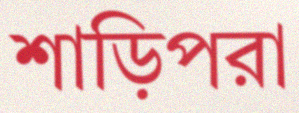
শাড়িপরা